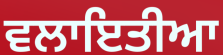
ਵਲਾਇਤੀਆ